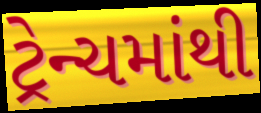
ટ્રેન્ચમાંથી